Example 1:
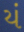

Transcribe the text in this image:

યં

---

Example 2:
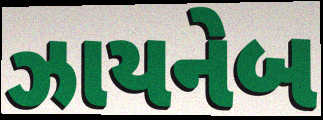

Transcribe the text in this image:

ઝાયનેબ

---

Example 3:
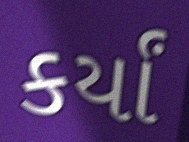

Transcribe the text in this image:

કર્યાં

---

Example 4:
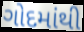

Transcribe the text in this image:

ગોદમાંથી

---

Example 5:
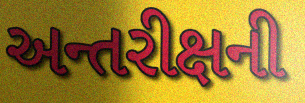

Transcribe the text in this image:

અન્તરીક્ષની